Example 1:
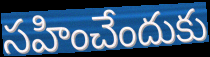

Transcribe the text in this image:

సహించేందుకు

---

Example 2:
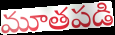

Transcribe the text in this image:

మూతపడి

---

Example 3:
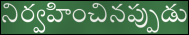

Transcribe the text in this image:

నిర్వహించినప్పుడు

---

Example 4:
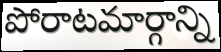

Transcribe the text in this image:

పోరాటమార్గాన్ని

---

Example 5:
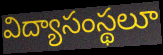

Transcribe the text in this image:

విద్యాసంస్థలూ